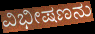
ವಿಭೀಷಣನು